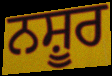
ਨਸ਼ੂਰ